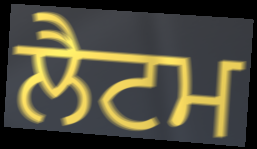
ਲੈਟਮ